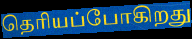
தெரியப்போகிறது